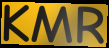
KMR